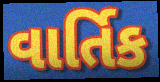
વાર્તિક